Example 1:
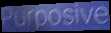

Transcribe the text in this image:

Purposive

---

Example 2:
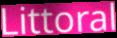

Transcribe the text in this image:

Littoral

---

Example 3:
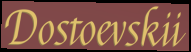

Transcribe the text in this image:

Dostoevskii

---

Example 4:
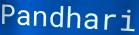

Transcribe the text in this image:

Pandhari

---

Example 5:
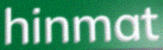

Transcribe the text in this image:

hinmat